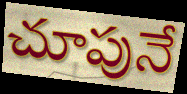
చూపునే